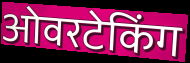
ओवरटेकिंग